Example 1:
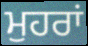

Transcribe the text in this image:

ਮੁਹਰਾਂ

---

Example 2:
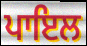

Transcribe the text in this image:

ਪਾਇਲ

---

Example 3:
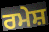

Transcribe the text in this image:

ਰਮੇਸ਼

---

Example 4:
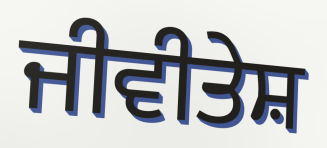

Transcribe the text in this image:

ਜੀਵੀਤੇਸ਼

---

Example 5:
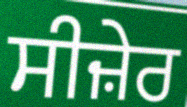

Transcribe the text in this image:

ਸੀਜ਼ੇਰ